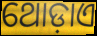
ଥୋଡ଼ାଏ